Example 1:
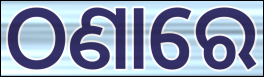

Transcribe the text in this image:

ଠଣାରେ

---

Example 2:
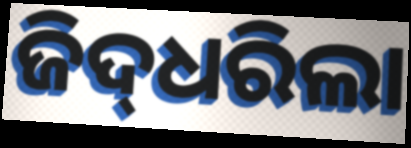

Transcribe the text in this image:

ଜିଦ୍‌ଧରିଲା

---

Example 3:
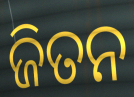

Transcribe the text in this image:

ଜିତନ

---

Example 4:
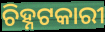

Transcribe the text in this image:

ଚିହ୍ନଟକାରୀ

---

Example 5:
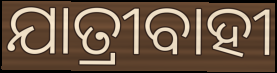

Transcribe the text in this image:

ଯାତ୍ରୀବାହୀ